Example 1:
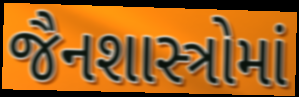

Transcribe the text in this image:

જૈનશાસ્ત્રોમાં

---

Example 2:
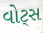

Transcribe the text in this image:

વોટ્સ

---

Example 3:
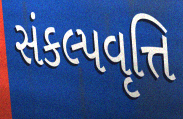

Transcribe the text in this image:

સંકલ્પવૃત્તિ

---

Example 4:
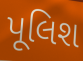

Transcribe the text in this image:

પૂલિશ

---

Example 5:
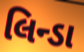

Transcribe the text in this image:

લિન્ડા